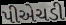
પીએચડી